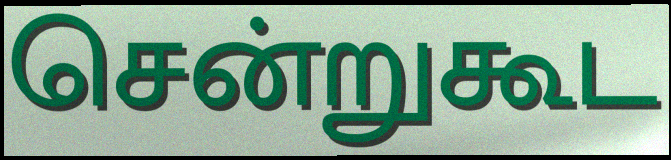
சென்றுகூட